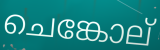
ചെങ്കോല്